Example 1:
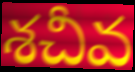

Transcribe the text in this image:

శచీవ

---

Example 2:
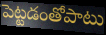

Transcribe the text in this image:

పెట్టడంతోపాటు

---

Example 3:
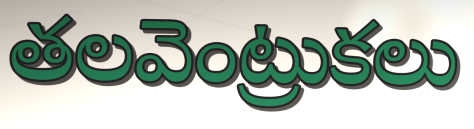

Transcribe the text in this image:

తలవెంట్రుకలు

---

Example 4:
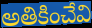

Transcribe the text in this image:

అతికించేవి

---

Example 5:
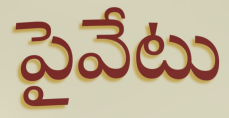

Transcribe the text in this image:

పైవేటు